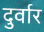
दुर्वार